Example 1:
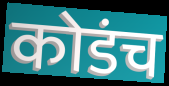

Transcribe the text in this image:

कोडंच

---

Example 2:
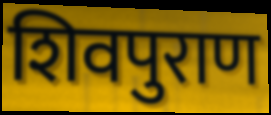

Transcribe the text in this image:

शिवपुराण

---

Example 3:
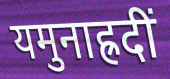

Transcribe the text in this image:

यमुनाह्रदीं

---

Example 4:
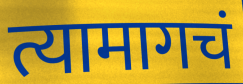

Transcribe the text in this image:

त्यामागचं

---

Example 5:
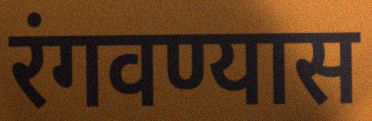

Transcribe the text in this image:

रंगवण्यास